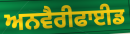
ਅਨਵੈਰੀਫਾਈਡ